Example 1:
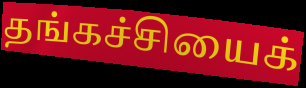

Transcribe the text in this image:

தங்கச்சியைக்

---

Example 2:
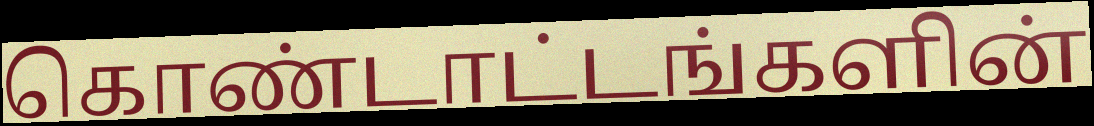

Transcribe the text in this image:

கொண்டாட்டங்களின்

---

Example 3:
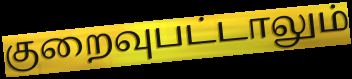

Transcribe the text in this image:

குறைவுபட்டாலும்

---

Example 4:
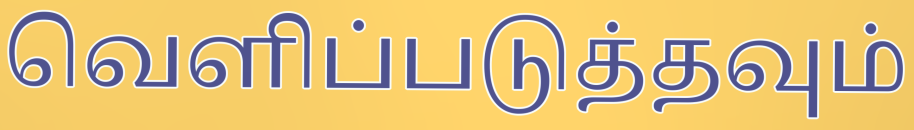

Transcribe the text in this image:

வெளிப்படுத்தவும்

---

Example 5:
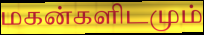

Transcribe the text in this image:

மகன்களிடமும்